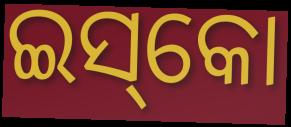
ଇସ୍‌କୋ